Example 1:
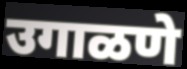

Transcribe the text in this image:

उगाळणे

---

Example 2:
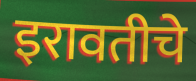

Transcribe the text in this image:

इरावतीचे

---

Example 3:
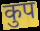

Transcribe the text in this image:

कुप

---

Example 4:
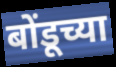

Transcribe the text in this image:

बोंडूच्या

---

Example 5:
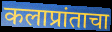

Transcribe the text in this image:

कलाप्रांताचा